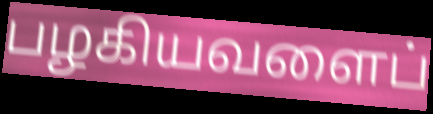
பழகியவளைப்